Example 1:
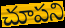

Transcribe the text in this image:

చూపని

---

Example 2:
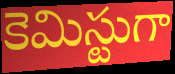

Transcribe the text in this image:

కెమిస్టుగా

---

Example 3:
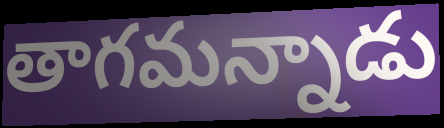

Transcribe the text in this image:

తాగమన్నాడు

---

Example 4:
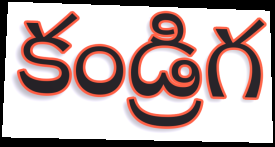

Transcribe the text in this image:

కండ్రిగ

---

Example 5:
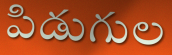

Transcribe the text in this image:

పిడుగుల